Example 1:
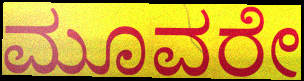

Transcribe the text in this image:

ಮೂವರೇ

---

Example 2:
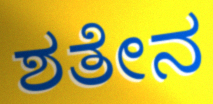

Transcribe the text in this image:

ಶತೇನ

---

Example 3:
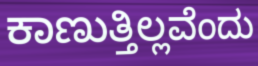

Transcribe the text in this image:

ಕಾಣುತ್ತಿಲ್ಲವೆಂದು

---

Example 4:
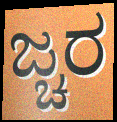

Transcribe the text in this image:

ಜ್ಚರ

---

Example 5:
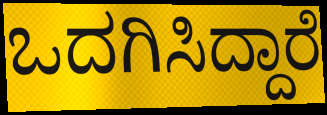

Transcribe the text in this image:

ಒದಗಿಸಿದ್ದಾರೆ